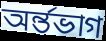
অৰ্ন্তভাগ